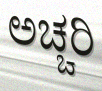
ಅಚ್ಚರಿ